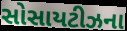
સોસાયટીઝના